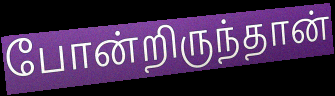
போன்றிருந்தான்